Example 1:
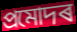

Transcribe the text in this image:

প্ৰমোদৰ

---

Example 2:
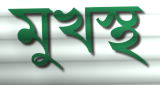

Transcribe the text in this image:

মুখস্থ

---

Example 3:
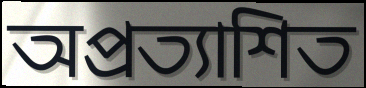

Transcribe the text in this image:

অপ্ৰত্যাশিত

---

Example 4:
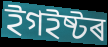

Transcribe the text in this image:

ইগইষ্টৰ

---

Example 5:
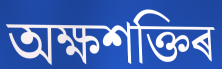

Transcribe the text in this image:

অক্ষশক্তিৰ